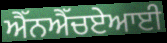
ਐੱਨਐੱਚਏਆਈ